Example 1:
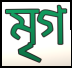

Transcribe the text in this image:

মৃগ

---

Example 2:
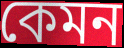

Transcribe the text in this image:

কেমন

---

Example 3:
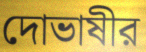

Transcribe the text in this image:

দোভাষীর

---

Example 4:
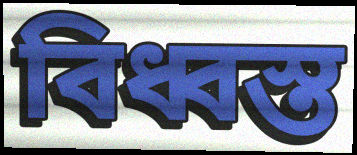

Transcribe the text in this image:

বিধ্বস্ত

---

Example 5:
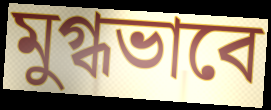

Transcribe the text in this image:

মুগ্ধভাবে